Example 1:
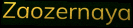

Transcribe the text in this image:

Zaozernaya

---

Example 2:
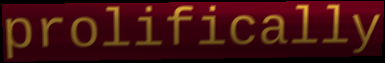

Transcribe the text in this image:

prolifically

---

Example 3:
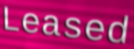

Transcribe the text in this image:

Leased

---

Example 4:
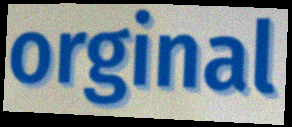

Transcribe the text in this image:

orginal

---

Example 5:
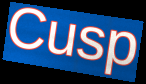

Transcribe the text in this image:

Cusp